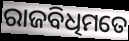
ରାଜବିଧିମତେ